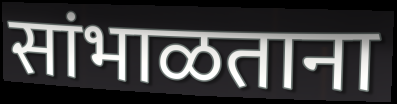
सांभाळताना